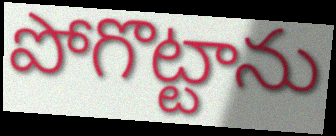
పోగొట్టాను